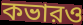
কভারও